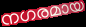
നഗരമായ